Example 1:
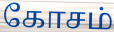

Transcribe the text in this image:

கோசம்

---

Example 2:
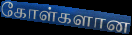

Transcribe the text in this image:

கோள்களான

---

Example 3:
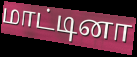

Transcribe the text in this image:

மாட்டினா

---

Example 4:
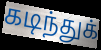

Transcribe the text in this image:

கடிந்துக்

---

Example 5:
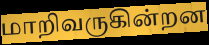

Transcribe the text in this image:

மாறிவருகின்றன